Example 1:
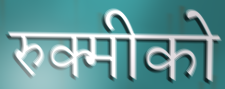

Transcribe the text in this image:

रुक्मीको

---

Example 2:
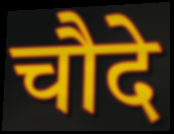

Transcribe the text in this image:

चौदे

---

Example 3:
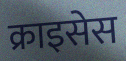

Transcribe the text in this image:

क्राइसेस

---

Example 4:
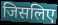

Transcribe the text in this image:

जिसलिए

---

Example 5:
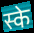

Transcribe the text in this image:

स्के